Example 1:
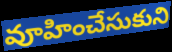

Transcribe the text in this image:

వూహించేసుకుని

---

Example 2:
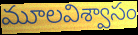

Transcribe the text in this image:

మూలవిశ్వాసం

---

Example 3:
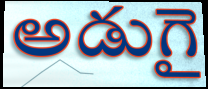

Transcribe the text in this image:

అడుగై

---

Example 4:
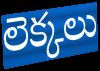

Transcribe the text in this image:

లెక్కలు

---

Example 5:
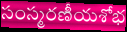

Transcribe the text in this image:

సంస్మరణీయశోభ